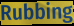
Rubbing